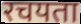
रचयता